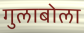
गुलाबोला